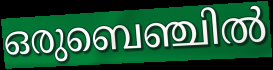
ഒരുബെഞ്ചിൽ